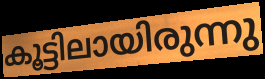
കൂട്ടിലായിരുന്നു